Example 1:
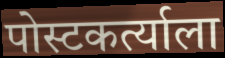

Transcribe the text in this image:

पोस्टकर्त्याला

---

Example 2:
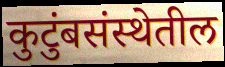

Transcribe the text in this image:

कुटुंबसंस्थेतील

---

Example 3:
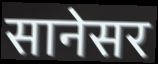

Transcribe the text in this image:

सानेसर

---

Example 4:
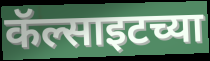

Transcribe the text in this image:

कॅल्साइटच्या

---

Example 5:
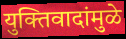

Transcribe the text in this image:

युक्तिवादांमुळे